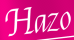
Hazo